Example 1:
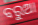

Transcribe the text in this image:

ବରୁଆ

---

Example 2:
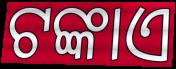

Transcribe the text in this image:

ଟଙ୍କାଏ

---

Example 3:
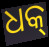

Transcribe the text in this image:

ଧକ୍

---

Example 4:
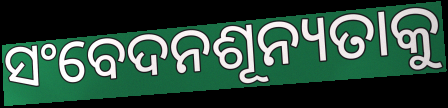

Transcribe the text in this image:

ସଂବେଦନଶୂନ୍ୟତାକୁ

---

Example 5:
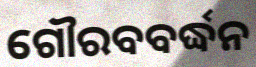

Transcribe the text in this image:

ଗୌରବବର୍ଦ୍ଧନ